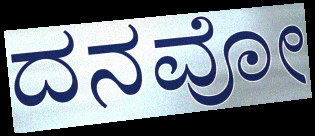
ದನವೋ